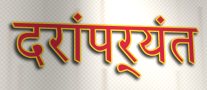
दरांपर्यंत